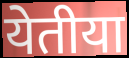
येतीया